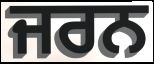
ਜਰਨ